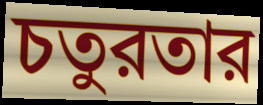
চতুরতার